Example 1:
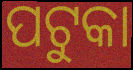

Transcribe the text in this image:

ପଟୁକା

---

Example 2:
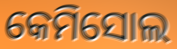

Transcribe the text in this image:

କେମିସୋଲ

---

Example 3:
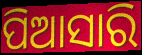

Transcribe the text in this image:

ପିଆସାରି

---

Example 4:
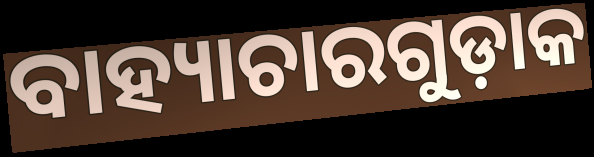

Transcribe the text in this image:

ବାହ୍ୟାଚାରଗୁଡ଼ାକ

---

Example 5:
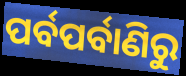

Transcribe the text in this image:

ପର୍ବପର୍ବାଣିରୁ